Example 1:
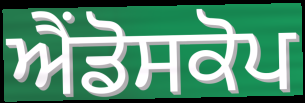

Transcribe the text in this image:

ਐਂਡੋਸਕੋਪ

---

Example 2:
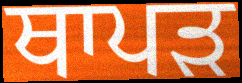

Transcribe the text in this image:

ਥਾਪੜ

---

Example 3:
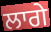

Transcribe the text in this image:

ਲਾਗੇ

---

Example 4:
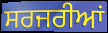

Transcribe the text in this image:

ਸਰਜਰੀਆਂ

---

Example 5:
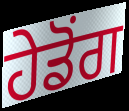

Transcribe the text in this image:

ਹੇਡੋਂਗ